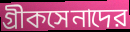
গ্রীকসেনাদের